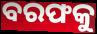
ବରଫକୁ